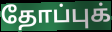
தோப்புக்